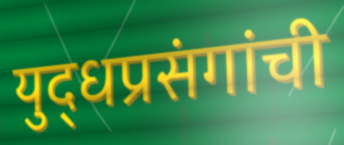
युद्धप्रसंगांची